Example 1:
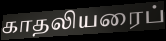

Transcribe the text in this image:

காதலியரைப்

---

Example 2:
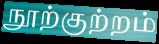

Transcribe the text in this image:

நூற்குற்றம்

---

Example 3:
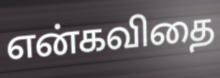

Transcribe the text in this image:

என்கவிதை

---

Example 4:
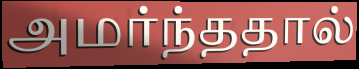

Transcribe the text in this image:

அமர்ந்ததால்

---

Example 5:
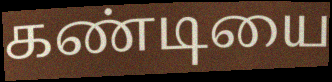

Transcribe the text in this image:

கண்டியை